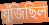
যুঁজিছিল